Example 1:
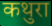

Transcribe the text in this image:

कथुरा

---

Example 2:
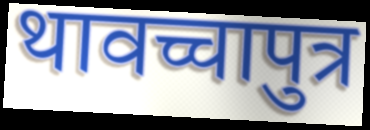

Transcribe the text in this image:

थावच्चापुत्र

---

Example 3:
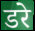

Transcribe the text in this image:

डरे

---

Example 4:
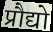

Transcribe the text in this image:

प्रौद्यो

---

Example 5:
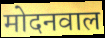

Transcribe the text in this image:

मोदनवाल